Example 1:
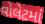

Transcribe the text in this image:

વોલેટમાં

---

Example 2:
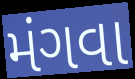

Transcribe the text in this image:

મંગવા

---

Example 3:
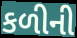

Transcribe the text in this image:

કળીની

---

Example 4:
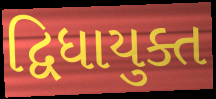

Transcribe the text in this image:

દ્વિધાયુક્ત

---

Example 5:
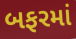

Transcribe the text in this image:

બફરમાં